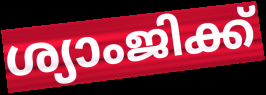
ശ്യാംജിക്ക്